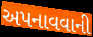
અપનાવવાની